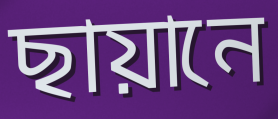
ছায়ানে